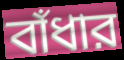
বাঁধার